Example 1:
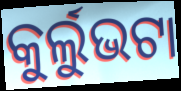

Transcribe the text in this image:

କୁର୍ଲୁଭଟା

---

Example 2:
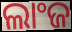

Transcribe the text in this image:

ଲାଂଜ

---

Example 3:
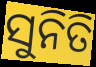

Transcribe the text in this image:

ସୁନିତି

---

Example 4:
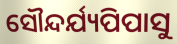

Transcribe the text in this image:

ସୌନ୍ଦର୍ଯ୍ୟପିପାସୁ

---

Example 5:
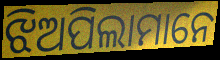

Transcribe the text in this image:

ଝିଅପିଲାମାନେ